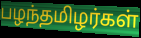
பழந்தமிழர்கள்